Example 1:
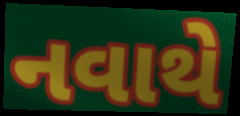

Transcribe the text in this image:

નવાથે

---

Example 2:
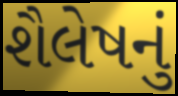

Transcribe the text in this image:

શૈલેષનું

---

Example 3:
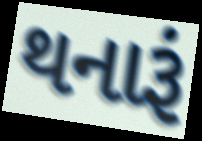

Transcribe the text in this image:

થનારૂં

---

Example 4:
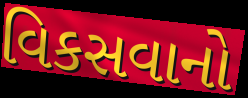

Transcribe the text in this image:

વિકસવાનો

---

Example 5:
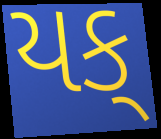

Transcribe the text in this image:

યક્